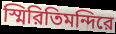
স্মিরিতিমন্দিরে